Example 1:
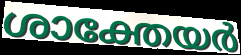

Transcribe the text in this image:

ശാക്തേയർ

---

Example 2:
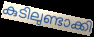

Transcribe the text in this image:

കുടിലുണ്ടാക്കി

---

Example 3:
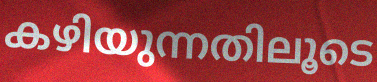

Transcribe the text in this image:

കഴിയുന്നതിലൂടെ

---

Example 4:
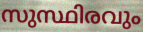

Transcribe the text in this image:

സുസ്ഥിരവും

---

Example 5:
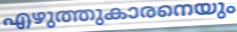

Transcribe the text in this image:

എഴുത്തുകാരനെയും